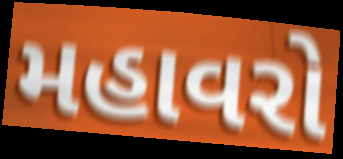
મહાવરો